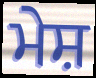
ਮੇਸ਼